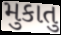
મુકાતુ